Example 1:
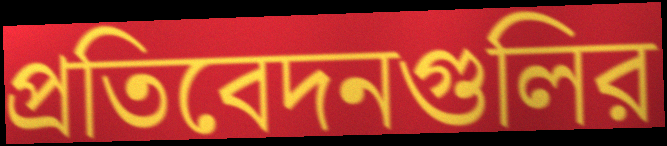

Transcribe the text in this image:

প্রতিবেদনগুলির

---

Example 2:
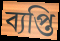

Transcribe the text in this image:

ব্যপ্তি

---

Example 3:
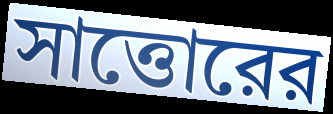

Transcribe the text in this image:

সাত্তোরের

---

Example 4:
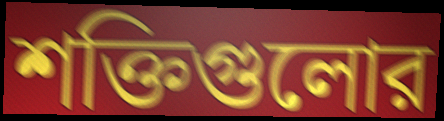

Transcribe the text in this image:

শক্তিগুলোর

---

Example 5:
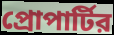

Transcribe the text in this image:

প্রোপার্টির